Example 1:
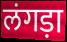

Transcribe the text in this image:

लंगड़ा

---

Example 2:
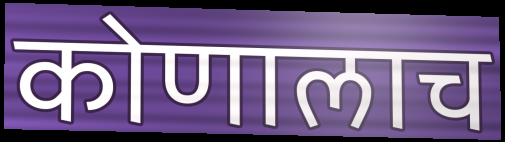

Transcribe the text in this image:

कोणालाच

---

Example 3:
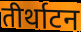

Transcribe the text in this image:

तीर्थाटन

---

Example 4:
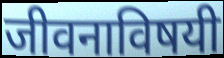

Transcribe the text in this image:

जीवनाविषयी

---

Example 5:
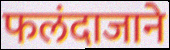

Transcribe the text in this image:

फलंदाजाने